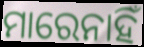
ମାରେନାହିଁ